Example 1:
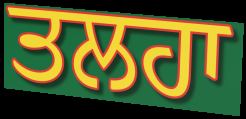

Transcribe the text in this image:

ਤਲਹਾ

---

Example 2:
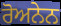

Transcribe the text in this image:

ਰੋਅਨੇਨ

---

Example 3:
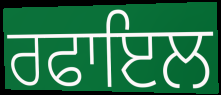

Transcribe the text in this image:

ਰਫਾਇਲ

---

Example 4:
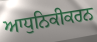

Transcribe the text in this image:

ਆਧੁਨਿਕੀਕਰਨ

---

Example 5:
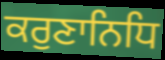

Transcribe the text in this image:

ਕਰੁਣਾਨਿਧਿ